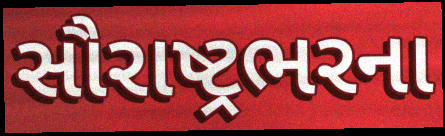
સૌરાષ્ટ્રભરના